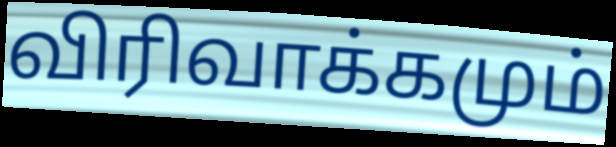
விரிவாக்கமும்